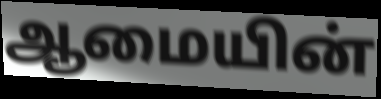
ஆமையின்